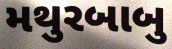
મથુરબાબુ